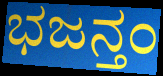
ಭಜನ್ತಂ